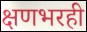
क्षणभरही